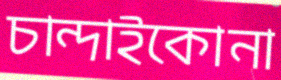
চান্দাইকোনা